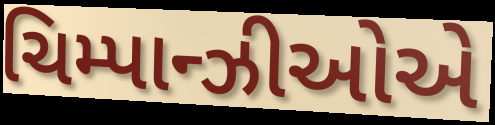
ચિમ્પાન્ઝીઓએ